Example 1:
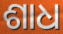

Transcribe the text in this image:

ଶାଧ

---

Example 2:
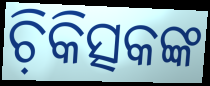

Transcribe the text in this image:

ଚ଼ିକିତ୍ସକଙ୍କ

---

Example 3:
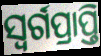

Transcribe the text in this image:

ସ୍ଵର୍ଗପ୍ରାପ୍ତି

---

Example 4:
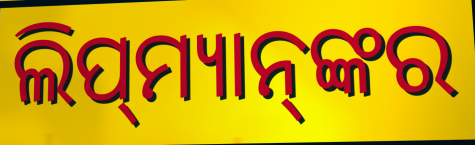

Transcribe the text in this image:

ଲିପ୍‌ମ୍ୟାନ୍‌ଙ୍କର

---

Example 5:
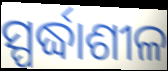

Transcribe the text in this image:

ସ୍ପର୍ଦ୍ଧାଶୀଳ